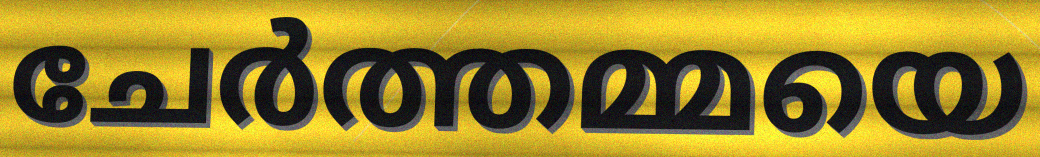
ചേർത്തമ്മയെ